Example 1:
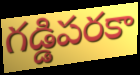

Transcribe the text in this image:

గడ్డిపరకా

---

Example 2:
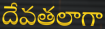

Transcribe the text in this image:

దేవతలాగా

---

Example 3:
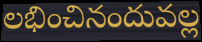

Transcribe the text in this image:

లభించినందువల్ల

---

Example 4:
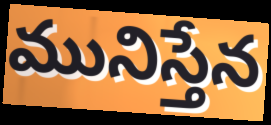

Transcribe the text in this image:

మునిస్తేన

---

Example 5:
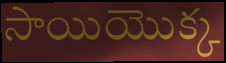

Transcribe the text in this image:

సాయియొక్క